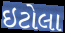
ઇટોલા